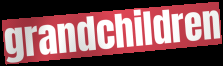
grandchildren